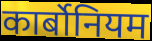
कार्बोनियम